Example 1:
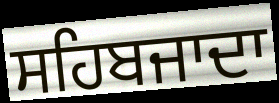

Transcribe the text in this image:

ਸਹਿਬਜਾਦਾ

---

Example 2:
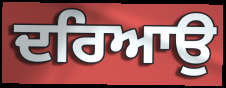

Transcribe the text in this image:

ਦਰਿਆਉ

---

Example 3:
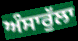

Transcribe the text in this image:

ਅੰਸਾਰੁੱਲਾ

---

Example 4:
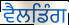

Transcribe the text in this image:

ਵੈਲਡਿੰਗ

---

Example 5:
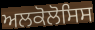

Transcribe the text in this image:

ਅਲਕੋਲੋਸਿਸ